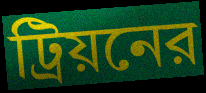
ট্রিয়নের